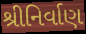
શ્રીનિર્વાણ